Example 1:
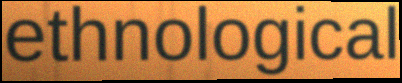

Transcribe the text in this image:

ethnological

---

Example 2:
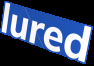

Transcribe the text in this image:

lured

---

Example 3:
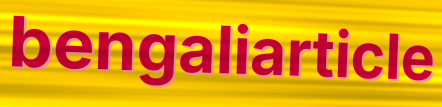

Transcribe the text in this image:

bengaliarticle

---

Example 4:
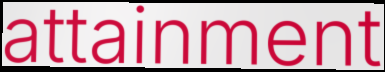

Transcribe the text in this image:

attainment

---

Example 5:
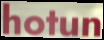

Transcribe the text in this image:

hotun